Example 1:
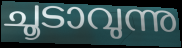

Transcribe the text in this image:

ചൂടാവുന്നു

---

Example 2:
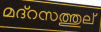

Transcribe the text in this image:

മദ്റസത്തുല്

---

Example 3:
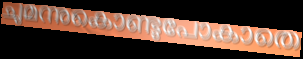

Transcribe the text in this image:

ചുമന്നുകൊണ്ടുപോകാതെ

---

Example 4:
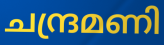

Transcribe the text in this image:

ചന്ദ്രമണി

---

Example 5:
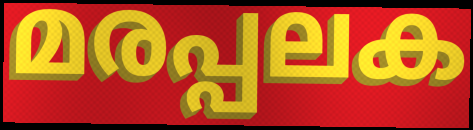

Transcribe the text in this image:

മരപ്പലക